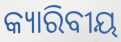
କ୍ୟାରିବୀୟ